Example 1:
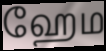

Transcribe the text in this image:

ஹேம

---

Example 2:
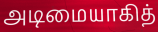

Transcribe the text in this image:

அடிமையாகித்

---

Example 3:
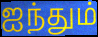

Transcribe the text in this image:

ஐந்தும்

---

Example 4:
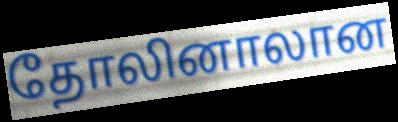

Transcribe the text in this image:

தோலினாலான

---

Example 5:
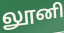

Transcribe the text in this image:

லூனி